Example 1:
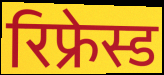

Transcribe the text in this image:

रिफ्रेस्ड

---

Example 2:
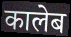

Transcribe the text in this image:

कालेब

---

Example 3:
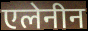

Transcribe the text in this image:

एलेनीन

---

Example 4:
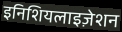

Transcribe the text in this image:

इनिशियलाइज़ेशन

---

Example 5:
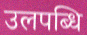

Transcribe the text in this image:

उलपब्धि